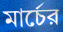
মার্চের